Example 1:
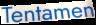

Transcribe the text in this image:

Tentamen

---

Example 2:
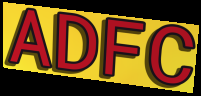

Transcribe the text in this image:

ADFC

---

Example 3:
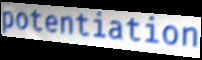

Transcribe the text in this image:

potentiation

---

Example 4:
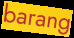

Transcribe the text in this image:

barang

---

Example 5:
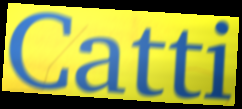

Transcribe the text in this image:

Catti